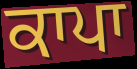
ਕਾਪਾ